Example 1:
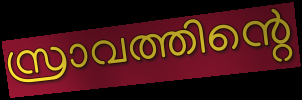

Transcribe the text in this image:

സ്രാവത്തിന്റെ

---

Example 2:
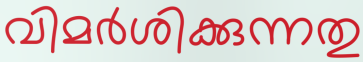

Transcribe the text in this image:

വിമർശിക്കുന്നതു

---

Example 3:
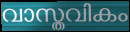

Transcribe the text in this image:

വാസ്തവികം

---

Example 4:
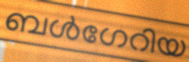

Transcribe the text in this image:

ബൾഗേറിയ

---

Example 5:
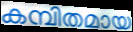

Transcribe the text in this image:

കമ്പിതമായ